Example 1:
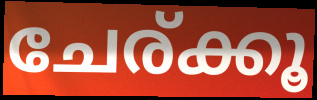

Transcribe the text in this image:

ചേര്ക്കൂ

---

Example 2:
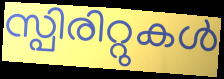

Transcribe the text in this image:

സ്പിരിറ്റുകൾ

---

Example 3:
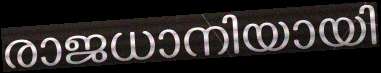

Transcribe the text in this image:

രാജധാനിയായി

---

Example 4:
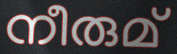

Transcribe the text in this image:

നീരുമ്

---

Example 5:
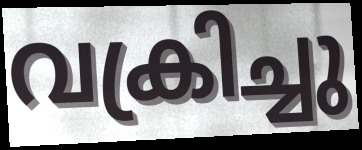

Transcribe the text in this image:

വക്രിച്ചു